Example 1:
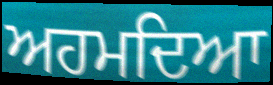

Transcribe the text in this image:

ਅਹਮਦਿਆ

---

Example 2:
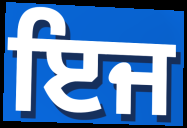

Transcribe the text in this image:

ਇਜ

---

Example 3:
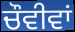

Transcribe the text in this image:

ਚੌਵੀਵਾਂ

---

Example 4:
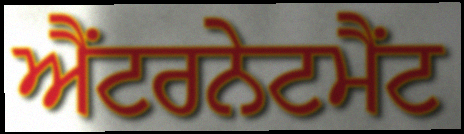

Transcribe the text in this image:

ਐਂਟਰਨੇਟਮੈਂਟ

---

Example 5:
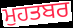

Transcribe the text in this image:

ਮੁਹਤਬਰ